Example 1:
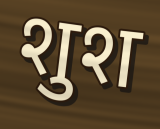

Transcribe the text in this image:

शुश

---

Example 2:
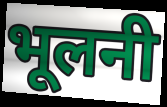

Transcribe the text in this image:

भूलनी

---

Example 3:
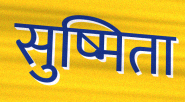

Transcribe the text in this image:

सुष्मिता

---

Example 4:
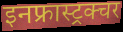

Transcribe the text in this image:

इनफ्रास्ट्रक्चर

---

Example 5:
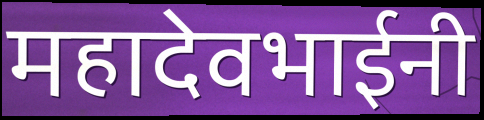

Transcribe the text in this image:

महादेवभाईनी